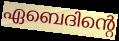
ഏബെദിന്റെ